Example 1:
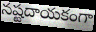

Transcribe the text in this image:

నష్టదాయకంగా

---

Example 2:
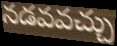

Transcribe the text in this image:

నడవవచ్చు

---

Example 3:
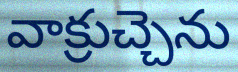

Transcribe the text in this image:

వాక్రుచ్చెను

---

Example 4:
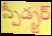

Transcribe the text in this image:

స్పీడ్స్టర్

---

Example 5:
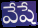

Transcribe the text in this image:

వేషే